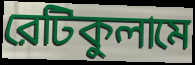
রেটিকুলামে